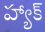
హ్యాక్